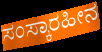
ಸಂಸ್ಕಾರಹೀನ